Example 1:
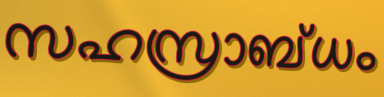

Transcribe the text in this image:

സഹസ്രാബ്ധം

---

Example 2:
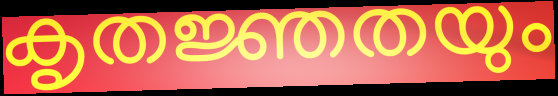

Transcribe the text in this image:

കൃതജ്ഞതയും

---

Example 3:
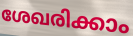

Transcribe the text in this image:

ശേഖരിക്കാം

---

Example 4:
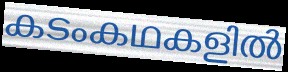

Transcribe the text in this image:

കടംകഥകളിൽ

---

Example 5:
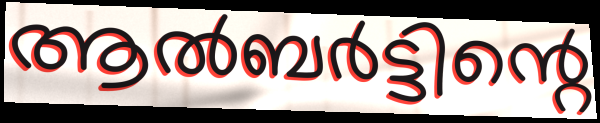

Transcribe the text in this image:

ആൽബർട്ടിന്റെ